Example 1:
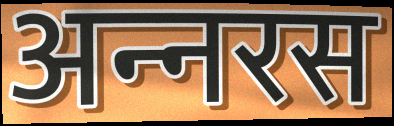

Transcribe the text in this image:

अन्नरस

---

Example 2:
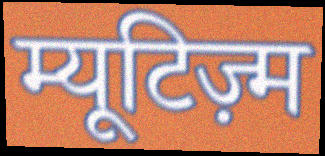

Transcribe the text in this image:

म्यूटिज़्म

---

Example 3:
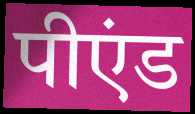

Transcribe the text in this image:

पीएंड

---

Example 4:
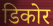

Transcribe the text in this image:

डिकोर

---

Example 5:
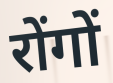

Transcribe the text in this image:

रोंगों